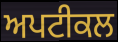
ਅਪਟੀਕਲ